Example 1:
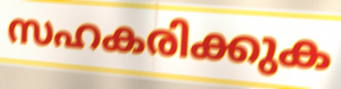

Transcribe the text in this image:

സഹകരിക്കുക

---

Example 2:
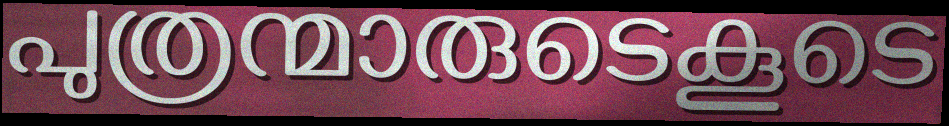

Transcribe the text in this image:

പുത്രന്മാരുടെകൂടെ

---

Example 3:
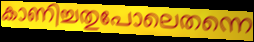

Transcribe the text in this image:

കാണിച്ചതുപോലെതന്നെ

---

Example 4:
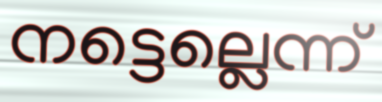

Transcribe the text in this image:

നട്ടെല്ലെന്ന്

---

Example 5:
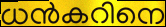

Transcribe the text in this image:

ധൻകറിനെ